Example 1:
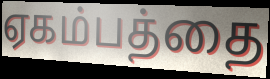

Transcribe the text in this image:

ஏகம்பத்தை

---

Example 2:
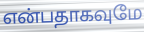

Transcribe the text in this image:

என்பதாகவுமே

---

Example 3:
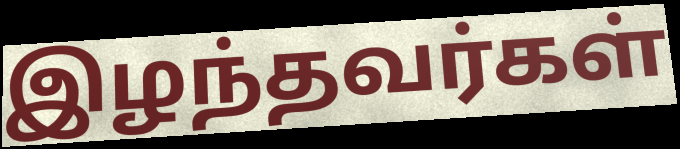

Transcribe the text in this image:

இழந்தவர்கள்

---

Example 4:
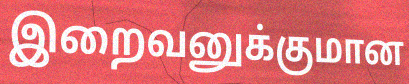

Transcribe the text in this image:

இறைவனுக்குமான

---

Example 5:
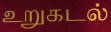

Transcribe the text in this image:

உறுகடல்